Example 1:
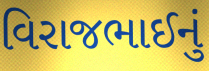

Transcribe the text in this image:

વિરાજભાઈનું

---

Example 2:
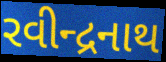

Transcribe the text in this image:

રવીન્દ્રનાથ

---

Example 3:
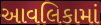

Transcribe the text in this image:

આવલિકામાં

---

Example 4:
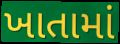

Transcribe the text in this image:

ખાતામાં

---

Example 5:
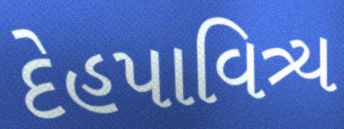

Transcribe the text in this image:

દેહપાવિત્ર્ય